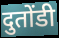
दुतोंडी